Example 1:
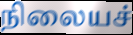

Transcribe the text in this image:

நிலையச்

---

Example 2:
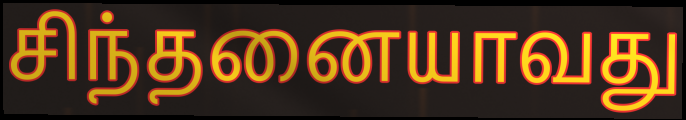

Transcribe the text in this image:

சிந்தனையாவது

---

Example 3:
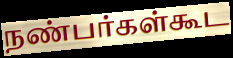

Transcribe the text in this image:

நண்பர்கள்கூட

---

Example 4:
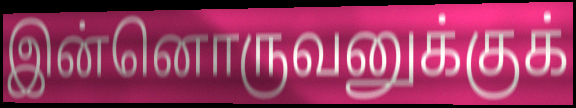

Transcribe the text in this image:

இன்னொருவனுக்குக்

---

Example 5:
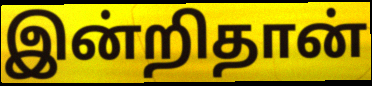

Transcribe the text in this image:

இன்றிதான்